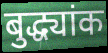
बुद्ध्यांक